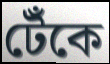
টেঁকে